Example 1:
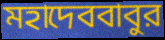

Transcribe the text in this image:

মহাদেববাবুর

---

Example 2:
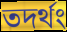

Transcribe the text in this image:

তদর্থং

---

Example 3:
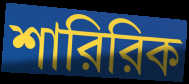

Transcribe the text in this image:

শারিরিক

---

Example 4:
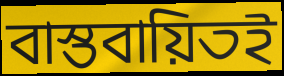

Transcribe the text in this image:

বাস্তবায়িতই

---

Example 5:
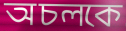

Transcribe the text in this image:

অচলকে